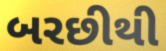
બરછીથી